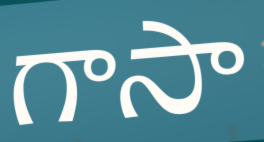
గాసా